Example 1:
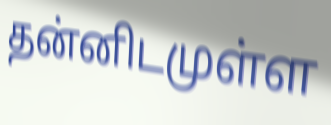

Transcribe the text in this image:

தன்னிடமுள்ள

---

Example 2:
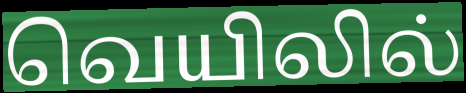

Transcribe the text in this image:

வெயிலில்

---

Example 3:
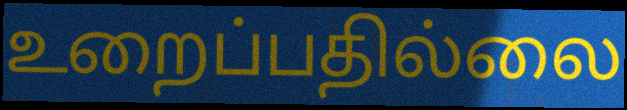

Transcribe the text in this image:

உறைப்பதில்லை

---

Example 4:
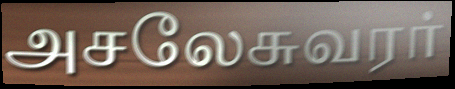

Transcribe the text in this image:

அசலேசுவரர்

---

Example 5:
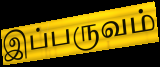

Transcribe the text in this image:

இப்பருவம்